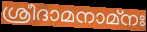
ശ്രീദാമനാമ്നഃ